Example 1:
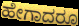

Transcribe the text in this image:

ಹೇಗಾದರೂ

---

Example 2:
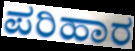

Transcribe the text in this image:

ಪರಿಹಾರ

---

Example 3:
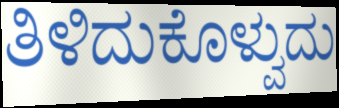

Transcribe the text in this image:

ತಿಳಿದುಕೊಳ್ವುದು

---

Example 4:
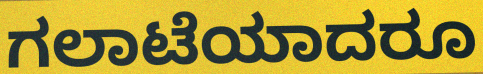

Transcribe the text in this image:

ಗಲಾಟೆಯಾದರೂ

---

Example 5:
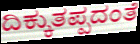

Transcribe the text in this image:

ದಿಕ್ಕುತಪ್ಪದಂತೆ